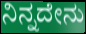
ನಿನ್ನದೇನು